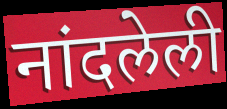
नांदलेली